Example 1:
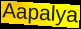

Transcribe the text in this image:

Aapalya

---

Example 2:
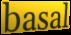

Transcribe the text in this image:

basal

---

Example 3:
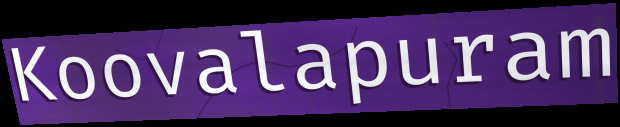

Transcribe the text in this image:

Koovalapuram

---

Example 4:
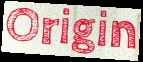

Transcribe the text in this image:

Origin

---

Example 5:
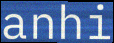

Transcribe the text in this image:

anhi